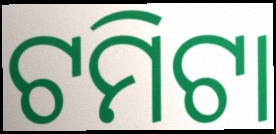
ଟମିଟା